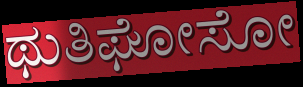
ಥುತಿಘೋಸೋ